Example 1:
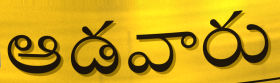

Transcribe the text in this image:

ఆడవారు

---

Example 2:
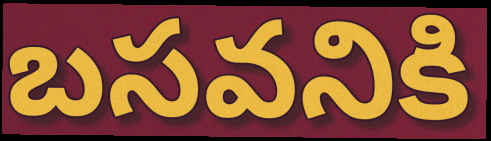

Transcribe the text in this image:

బసవనికి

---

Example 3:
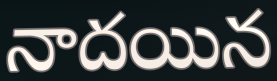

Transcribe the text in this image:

నాదయిన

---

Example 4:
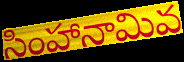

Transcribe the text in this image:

సింహానామివ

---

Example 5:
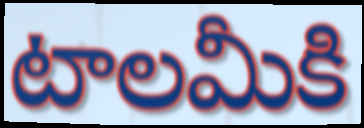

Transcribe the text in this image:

టాలమీకి